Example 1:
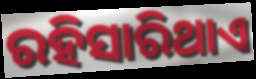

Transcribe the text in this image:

ରହିସାରିଥାଏ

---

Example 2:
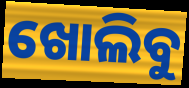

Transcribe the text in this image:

ଖୋଲିବୁ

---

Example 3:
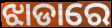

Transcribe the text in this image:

ଝାଡାରେ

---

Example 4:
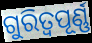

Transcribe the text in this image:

ଗୁରିତ୍ୱପୂର୍ଣ୍ଣ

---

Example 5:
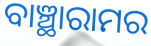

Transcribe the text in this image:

ବାଞ୍ଛାରାମର